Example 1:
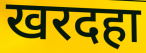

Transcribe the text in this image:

खरदहा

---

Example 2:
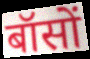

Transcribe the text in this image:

बॉसों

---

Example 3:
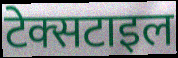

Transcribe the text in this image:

टेक्‍सटाइल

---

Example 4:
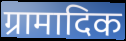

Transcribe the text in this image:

ग्रामादिक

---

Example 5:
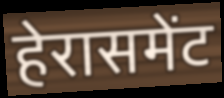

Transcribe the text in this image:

हेरासमेंट